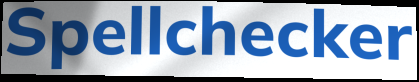
Spellchecker